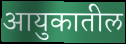
आयुकातील